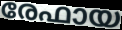
രേഫായ